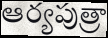
ఆర్యపుత్రా